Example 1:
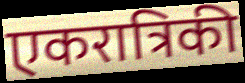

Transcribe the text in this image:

एकरात्रिकी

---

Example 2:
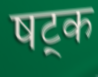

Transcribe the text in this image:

षट्क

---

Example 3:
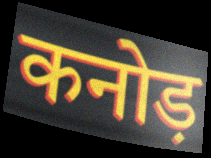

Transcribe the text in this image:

कनोड़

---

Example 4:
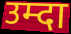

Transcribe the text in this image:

उम्दा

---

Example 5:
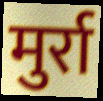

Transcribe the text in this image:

मुर्रा